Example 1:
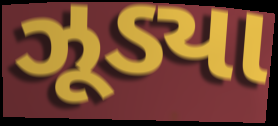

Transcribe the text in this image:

ઝૂડ્યા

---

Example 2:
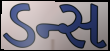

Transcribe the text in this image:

ડન્સ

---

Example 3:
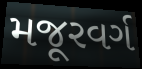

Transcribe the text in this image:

મજૂરવર્ગ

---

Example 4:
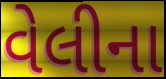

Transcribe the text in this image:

વેલીના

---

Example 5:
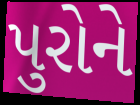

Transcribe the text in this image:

પુરોને